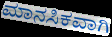
ಮಾನಸಿಕವಾಗಿ